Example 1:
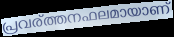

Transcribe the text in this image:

പ്രവര്ത്തനഫലമായാണ്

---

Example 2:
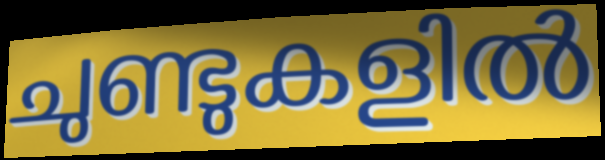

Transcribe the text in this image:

ചുണ്ടുകളിൽ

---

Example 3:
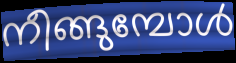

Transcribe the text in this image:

നീങ്ങുമ്പോൾ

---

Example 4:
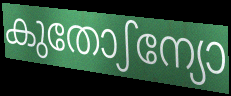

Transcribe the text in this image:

കുതോഽന്യോ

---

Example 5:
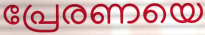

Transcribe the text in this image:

പ്രേരണയെ